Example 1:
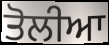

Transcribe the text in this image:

ਤੋਲੀਆ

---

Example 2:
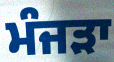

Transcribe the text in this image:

ਮੰਜੜਾ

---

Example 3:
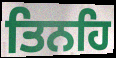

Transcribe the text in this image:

ਤਿਨਹਿ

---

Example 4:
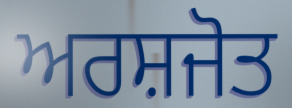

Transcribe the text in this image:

ਅਰਸ਼ਜੋਤ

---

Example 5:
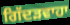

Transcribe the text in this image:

ਗਿੱਦੜਵਾਹਾ